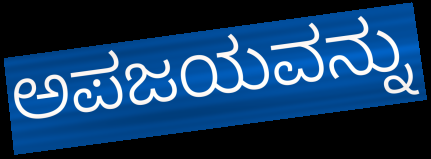
ಅಪಜಯವನ್ನು